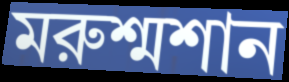
মরুশ্মশান